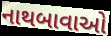
નાથબાવાઓ